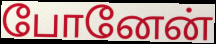
போனேன்